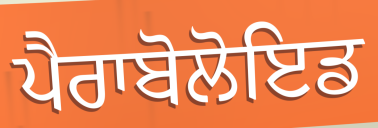
ਪੈਰਾਬੋਲੋਇਡ